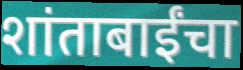
शांताबाईंचा